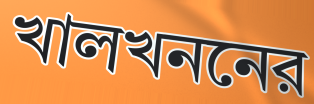
খালখননের